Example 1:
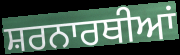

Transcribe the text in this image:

ਸ਼ਰਨਾਰਥੀਆਂ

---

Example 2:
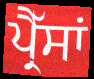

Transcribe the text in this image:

ਪ੍ਰੈੱਸਾਂ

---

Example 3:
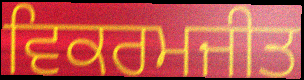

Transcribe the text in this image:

ਵਿਕਰਮਜੀਤ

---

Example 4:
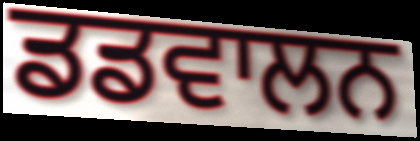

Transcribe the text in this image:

ਡਡਵਾਲਨ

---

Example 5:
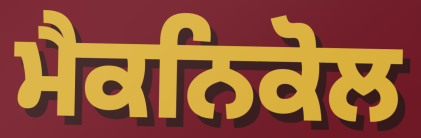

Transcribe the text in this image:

ਮੈਕਨਿਕੋਲ